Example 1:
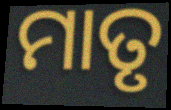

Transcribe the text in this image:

ମାତୃ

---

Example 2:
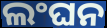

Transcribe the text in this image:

ଲଂଘନ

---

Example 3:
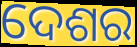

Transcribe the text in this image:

ଦେଶର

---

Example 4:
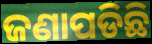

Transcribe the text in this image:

ଜଣାପଡିଛି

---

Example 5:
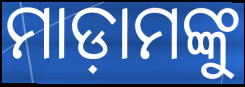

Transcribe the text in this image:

ମାଡ଼ାମଙ୍କୁ